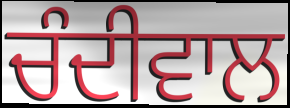
ਚੰਦੀਵਾਲ